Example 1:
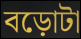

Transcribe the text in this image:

বড়োটা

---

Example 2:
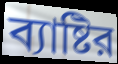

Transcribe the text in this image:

ব্যাষ্টির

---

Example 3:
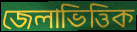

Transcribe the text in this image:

জেলাভিত্তিক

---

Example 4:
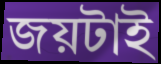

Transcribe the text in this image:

জয়টাই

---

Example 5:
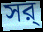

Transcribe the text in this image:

সর্